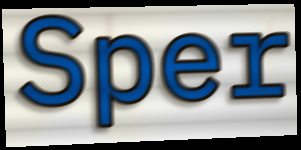
Sper